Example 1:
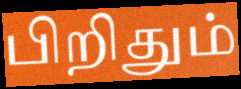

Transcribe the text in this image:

பிறிதும்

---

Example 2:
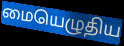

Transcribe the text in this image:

மையெழுதிய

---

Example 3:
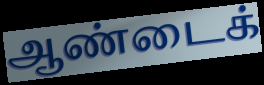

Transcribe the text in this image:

ஆண்டைக்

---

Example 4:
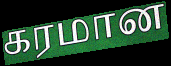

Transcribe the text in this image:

கரமான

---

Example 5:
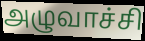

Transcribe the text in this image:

அழுவாச்சி